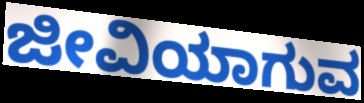
ಜೀವಿಯಾಗುವ